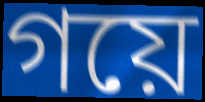
গয়ে